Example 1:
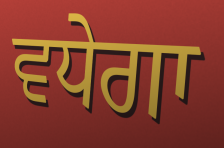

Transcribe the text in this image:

ਵਧੇਗਾ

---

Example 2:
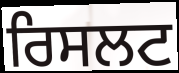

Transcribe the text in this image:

ਰਿਸਲਟ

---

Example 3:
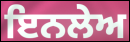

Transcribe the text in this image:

ਇਨਲੇਅ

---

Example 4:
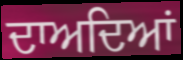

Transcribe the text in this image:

ਦਾਅਦਿਆਂ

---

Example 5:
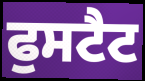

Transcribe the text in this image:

ਫੁਸਟੈਟ